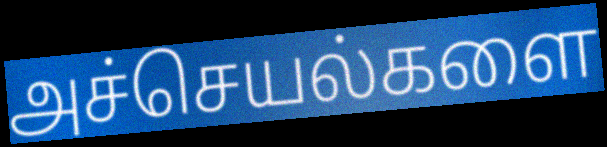
அச்செயல்களை